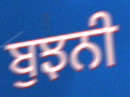
ਬੁਝਨੀ